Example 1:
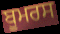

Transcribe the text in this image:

ਬੂਮਰਸ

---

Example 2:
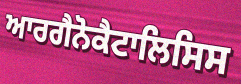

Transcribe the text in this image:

ਆਰਗੈਨੋਕੈਟਾਲਿਸਿਸ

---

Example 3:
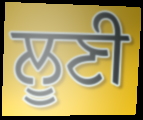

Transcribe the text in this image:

ਲੂਣੀ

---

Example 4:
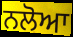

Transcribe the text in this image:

ਨਲੋਆ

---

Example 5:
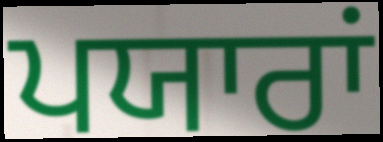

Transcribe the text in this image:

ਪਯਾਰਾਂ